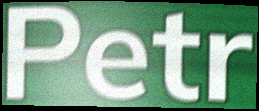
Petr